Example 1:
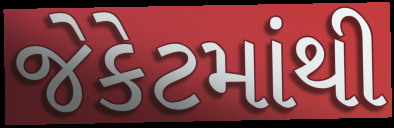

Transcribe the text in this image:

જેકેટમાંથી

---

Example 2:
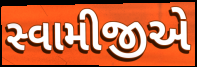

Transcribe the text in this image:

સ્વામીજીએ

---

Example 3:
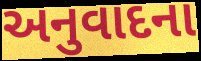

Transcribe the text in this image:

અનુવાદના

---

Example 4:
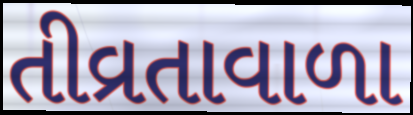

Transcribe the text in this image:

તીવ્રતાવાળા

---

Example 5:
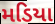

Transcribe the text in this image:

મડિયા